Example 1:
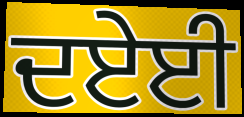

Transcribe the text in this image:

ਦਏਈ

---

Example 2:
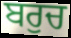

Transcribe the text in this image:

ਬਰੁਚ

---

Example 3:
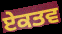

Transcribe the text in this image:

ਏਕਤਵ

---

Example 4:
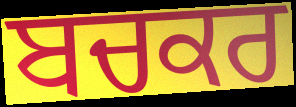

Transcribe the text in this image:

ਬਚਕਰ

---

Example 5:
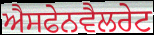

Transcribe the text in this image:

ਐਸਫੇਨਵੈਲਰੇਟ